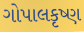
ગોપાલકૃષ્ણ